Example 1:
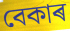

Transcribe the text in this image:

বেকাৰ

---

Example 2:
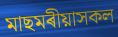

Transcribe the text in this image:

মাছমৰীয়াসকল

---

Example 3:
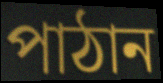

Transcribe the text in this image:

পাঠান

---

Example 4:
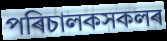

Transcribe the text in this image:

পৰিচালকসকলৰ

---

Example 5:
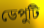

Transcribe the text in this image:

ডেপুটি